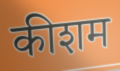
कीशम